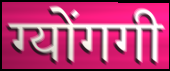
ग्योंगगी